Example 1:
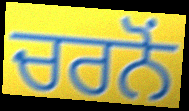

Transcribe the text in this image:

ਚਰਨੋਂ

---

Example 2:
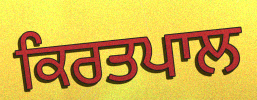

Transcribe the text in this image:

ਕਿਰਤਪਾਲ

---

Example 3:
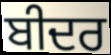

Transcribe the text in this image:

ਬੀਦਰ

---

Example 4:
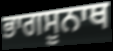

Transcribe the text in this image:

ਭਾਗਸੂਨਾਥ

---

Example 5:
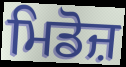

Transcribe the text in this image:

ਮਿਡੋਜ਼